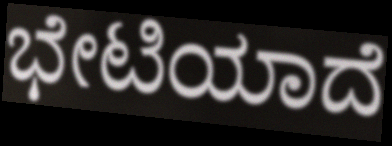
ಭೇಟಿಯಾದೆ